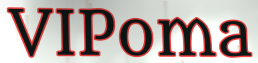
VIPoma